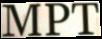
MPT